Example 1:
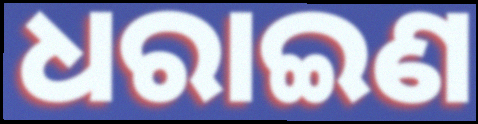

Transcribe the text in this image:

ଧରାଇଣ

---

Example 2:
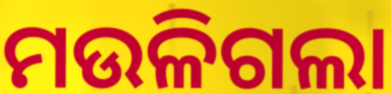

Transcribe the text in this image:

ମଉଳିଗଲା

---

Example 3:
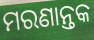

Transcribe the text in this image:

ମରଣାନ୍ତକ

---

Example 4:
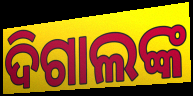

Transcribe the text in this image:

ଦିଗାଲଙ୍କ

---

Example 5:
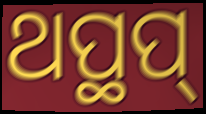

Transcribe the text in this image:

ଥପ୍ଥପ୍